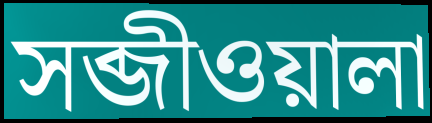
সব্জীওয়ালা